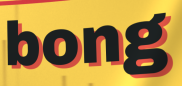
bong